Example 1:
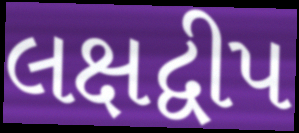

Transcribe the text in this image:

લક્ષદ્વીપ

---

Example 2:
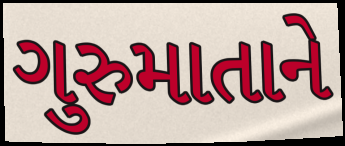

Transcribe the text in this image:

ગુરુમાતાને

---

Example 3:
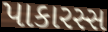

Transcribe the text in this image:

પાકારસ્સ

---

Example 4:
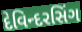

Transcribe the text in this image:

દેવિન્દરસિંગ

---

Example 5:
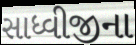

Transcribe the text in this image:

સાધ્વીજીના